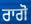
ਰਾਗੋ